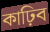
কাঢ়িব